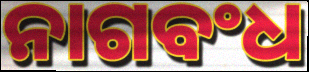
ନାଗବଂଧ